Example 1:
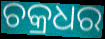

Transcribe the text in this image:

ଚକ୍ରଧର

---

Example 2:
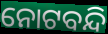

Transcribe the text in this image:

ନୋଟବନ୍ଦି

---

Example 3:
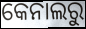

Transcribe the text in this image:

କେନାଲରୁ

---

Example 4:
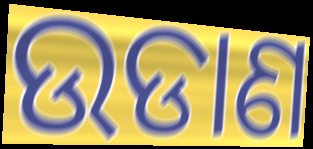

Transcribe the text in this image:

ଉଡାଣ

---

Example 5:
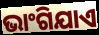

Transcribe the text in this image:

ଭାଂଗିଯାଏ